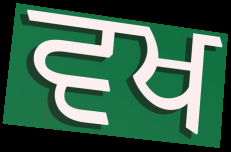
ਵਖ